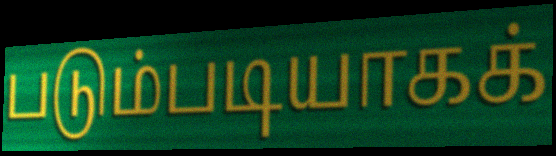
படும்படியாகக்